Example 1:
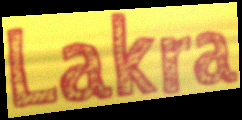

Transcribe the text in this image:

Lakra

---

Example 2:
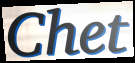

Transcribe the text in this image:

Chet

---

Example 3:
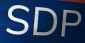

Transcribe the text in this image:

SDP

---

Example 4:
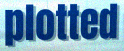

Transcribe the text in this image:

plotted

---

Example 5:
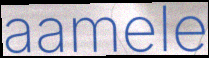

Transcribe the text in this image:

aamele